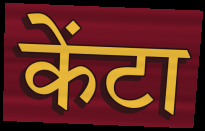
केंटा